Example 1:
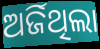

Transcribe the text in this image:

ଅର୍ଜିଥିଲା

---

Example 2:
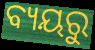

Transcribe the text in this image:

ବ୍ୟୟରୁ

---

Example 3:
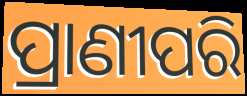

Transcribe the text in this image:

ପ୍ରାଣୀପରି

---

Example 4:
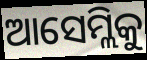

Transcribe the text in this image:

ଆସେମ୍ଲିକୁ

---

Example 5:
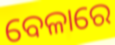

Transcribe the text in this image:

ବେଳାରେ